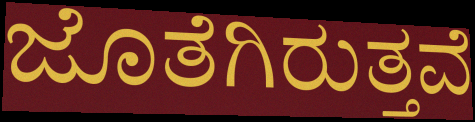
ಜೊತೆಗಿರುತ್ತವೆ